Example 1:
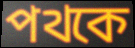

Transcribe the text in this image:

পথকে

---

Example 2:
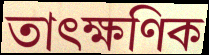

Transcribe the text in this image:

তাৎক্ষণিক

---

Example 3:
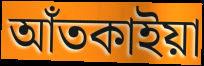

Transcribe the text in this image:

আঁতকাইয়া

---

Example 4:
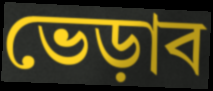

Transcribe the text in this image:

ভেড়াব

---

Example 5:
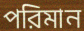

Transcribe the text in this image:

পরিমান